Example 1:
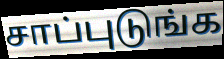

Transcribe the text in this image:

சாப்புடுங்க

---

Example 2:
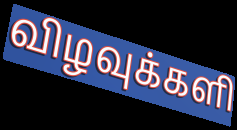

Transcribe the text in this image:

விழவுக்களி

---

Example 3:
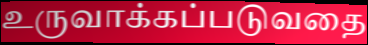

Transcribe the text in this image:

உருவாக்கப்படுவதை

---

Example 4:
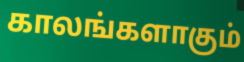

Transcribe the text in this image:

காலங்களாகும்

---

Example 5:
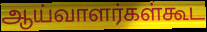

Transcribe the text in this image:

ஆய்வாளர்கள்கூட